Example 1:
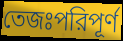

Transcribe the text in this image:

তেজঃপরিপূর্ণ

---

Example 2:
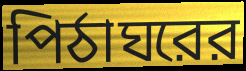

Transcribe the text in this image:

পিঠাঘরের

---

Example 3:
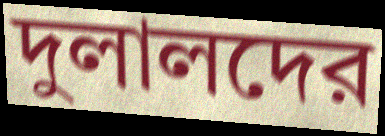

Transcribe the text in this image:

দুলালদের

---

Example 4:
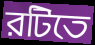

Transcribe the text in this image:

রটিতে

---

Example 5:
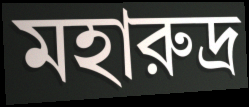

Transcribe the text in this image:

মহারুদ্র